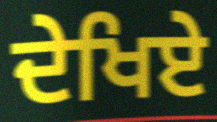
ਦੇਖਿਏ